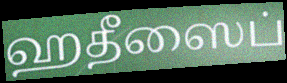
ஹதீஸைப்